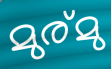
മുര്മു